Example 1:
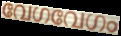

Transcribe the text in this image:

വേഗവേഗം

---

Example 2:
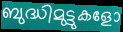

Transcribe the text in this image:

ബുദ്ധിമുട്ടുകളോ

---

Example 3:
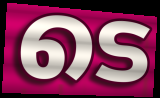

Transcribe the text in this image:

ടെ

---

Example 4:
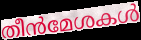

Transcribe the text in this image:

തീൻമേശകൾ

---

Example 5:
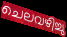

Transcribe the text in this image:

ചെലവഴിച്ചു